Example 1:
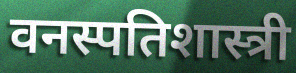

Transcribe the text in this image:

वनस्पतिशास्त्री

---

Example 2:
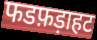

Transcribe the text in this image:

फडफ़ड़ाहट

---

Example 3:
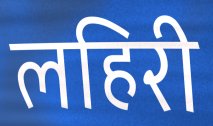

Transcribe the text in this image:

लहिरी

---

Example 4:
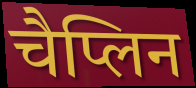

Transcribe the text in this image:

चैप्लिन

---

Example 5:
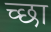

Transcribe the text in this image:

च्छा